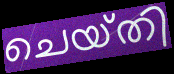
ചെയ്‌തി